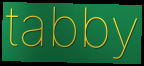
tabby